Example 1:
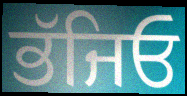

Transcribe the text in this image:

ਭੱਜਿਓ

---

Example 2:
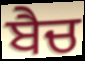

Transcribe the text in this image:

ਬੈਚ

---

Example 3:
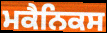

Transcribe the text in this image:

ਮਕੈਨਿਕਸ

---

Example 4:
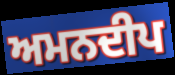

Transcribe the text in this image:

ਅਮਨਦੀਪ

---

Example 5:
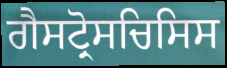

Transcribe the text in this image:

ਗੈਸਟ੍ਰੋਸਚਿਸਿਸ